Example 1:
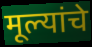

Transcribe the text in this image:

मूल्यांचे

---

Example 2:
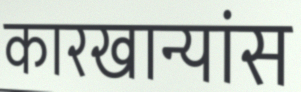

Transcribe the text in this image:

कारखान्यांस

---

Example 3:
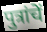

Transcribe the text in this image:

पुत्रांचें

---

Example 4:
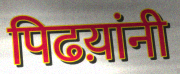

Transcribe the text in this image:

पिढय़ांनी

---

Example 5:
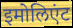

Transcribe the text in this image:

इमोलिएंट